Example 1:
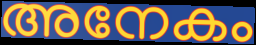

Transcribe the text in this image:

അനേകം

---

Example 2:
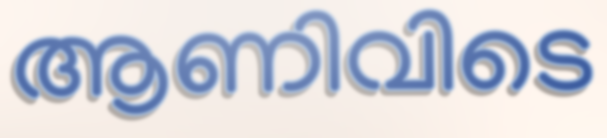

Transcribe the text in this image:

ആണിവിടെ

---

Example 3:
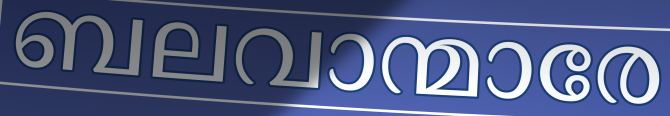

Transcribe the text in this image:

ബലവാന്മാരേ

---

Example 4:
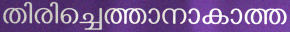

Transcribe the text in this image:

തിരിച്ചെത്താനാകാത്ത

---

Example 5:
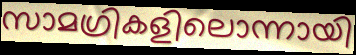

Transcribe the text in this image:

സാമഗ്രികളിലൊന്നായി